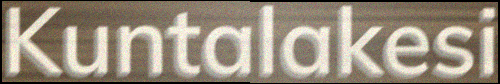
Kuntalakesi